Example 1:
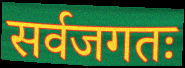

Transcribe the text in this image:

सर्वजगतः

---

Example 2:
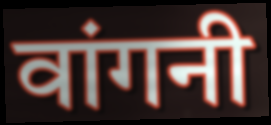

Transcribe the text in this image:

वांगनी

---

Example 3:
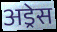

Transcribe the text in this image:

अड्रेस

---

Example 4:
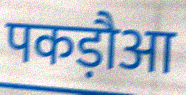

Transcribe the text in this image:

पकड़ौआ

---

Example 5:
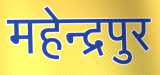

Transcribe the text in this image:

महेन्द्रपुर